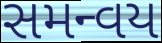
સમન્વય